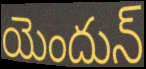
యెందున్